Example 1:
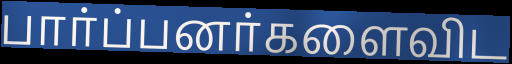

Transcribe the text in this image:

பார்ப்பனர்களைவிட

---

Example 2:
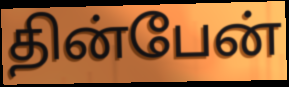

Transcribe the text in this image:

தின்பேன்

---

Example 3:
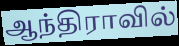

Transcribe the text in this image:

ஆந்திராவில்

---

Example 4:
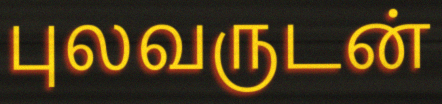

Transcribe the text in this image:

புலவருடன்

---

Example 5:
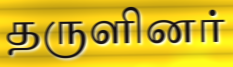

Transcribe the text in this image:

தருளினர்